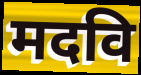
मदवि